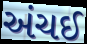
અંચઈ